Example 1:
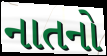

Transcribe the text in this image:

નાતનો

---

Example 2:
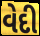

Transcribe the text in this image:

વેદી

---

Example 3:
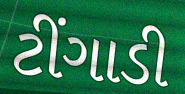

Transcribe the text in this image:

ટીંગાડી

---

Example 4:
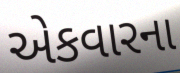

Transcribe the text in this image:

એકવારના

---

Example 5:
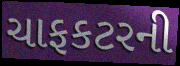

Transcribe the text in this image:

ચાફકટરની